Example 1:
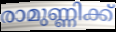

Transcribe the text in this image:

രാമുണ്ണിക്ക്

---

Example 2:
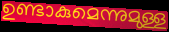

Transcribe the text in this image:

ഉണ്ടാകുമെന്നുമുള്ള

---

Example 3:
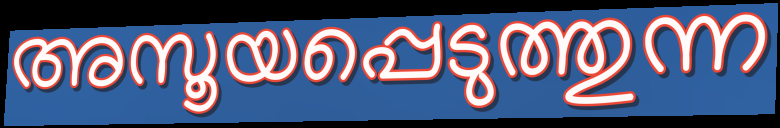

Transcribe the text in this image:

അസൂയപ്പെടുത്തുന്ന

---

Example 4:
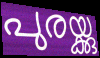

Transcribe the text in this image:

പുരയ്ക്കു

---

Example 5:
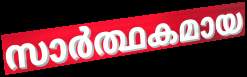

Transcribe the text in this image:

സാർത്ഥകമായ